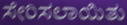
ಸೇರಿಸಲಾಯಿತು